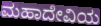
ಮಹಾದೇವಿಯ